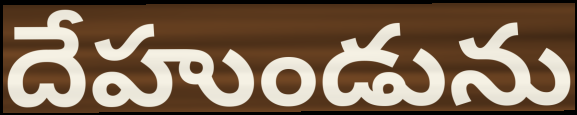
దేహుండును